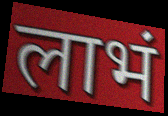
लाभं